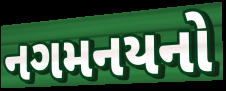
નગમનયનો